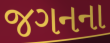
જગનના